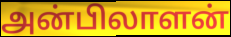
அன்பிலாளன்